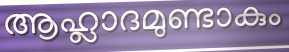
ആഹ്ലാദമുണ്ടാകും